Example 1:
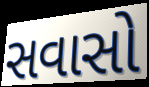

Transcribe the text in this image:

સવાસો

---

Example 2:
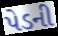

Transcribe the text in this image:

પેડની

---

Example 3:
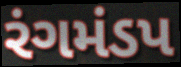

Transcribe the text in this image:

રંગમંડપ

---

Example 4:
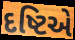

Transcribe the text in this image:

દષ્ટિએ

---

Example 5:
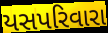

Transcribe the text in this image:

યસપરિવારા